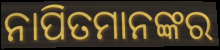
ନାପିତମାନଙ୍କର